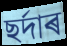
ছৰ্দাৰ